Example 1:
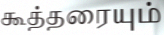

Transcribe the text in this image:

கூத்தரையும்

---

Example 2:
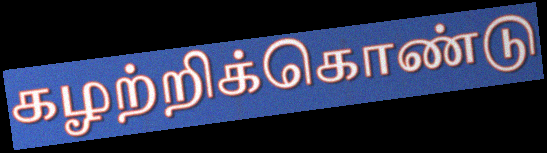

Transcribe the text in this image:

கழற்றிக்கொண்டு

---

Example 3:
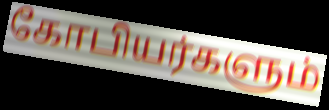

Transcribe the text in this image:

கோபியர்களும்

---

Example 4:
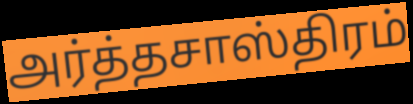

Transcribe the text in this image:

அர்த்தசாஸ்திரம்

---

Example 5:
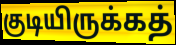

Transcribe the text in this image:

குடியிருக்கத்